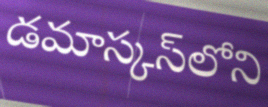
డమాస్కస్‌లోని